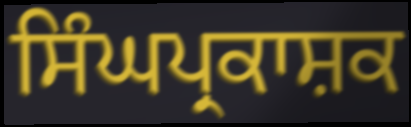
ਸਿੰਘਪ੍ਰਕਾਸ਼ਕ